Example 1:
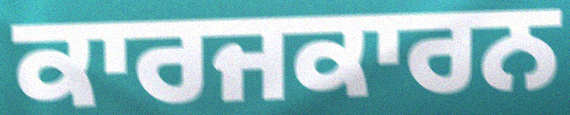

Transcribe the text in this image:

ਕਾਰਜਕਾਰਨ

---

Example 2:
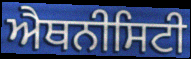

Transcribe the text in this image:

ਐਥਨੀਸਿਟੀ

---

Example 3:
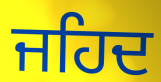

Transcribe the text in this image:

ਜਹਿਦ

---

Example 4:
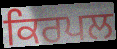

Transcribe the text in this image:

ਕਿਰਪਲ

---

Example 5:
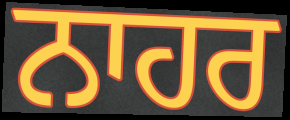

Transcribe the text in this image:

ਨਾਹਰ